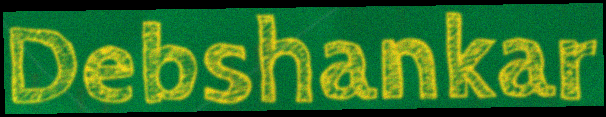
Debshankar